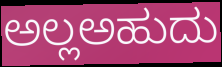
ಅಲ್ಲಅಹುದು